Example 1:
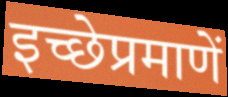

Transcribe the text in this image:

इच्छेप्रमाणें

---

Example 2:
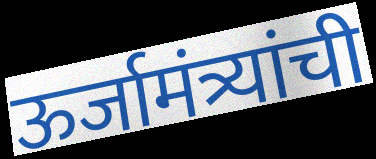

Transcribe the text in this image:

ऊर्जामंत्र्यांची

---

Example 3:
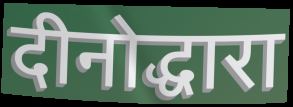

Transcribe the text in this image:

दीनोद्धारा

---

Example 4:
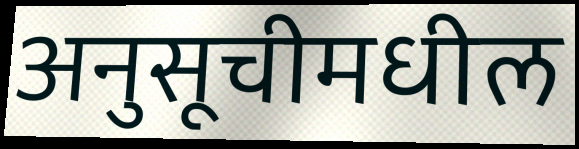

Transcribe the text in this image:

अनुसूचीमधील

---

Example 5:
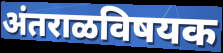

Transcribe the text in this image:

अंतराळविषयक